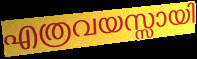
എത്രവയസ്സായി